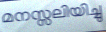
മനസ്സലിയിച്ചു